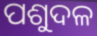
ପଶୁଦଳ